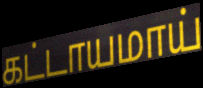
கட்டாயமாய்